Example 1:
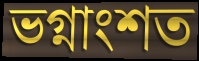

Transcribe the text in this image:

ভগ্নাংশত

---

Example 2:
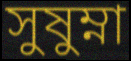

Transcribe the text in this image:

সুষুম্না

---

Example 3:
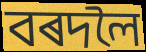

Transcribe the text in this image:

বৰদলৈ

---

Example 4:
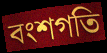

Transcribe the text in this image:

বংশগতি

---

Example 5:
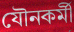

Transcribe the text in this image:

যৌনকৰ্মী